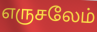
எருசலேம்